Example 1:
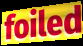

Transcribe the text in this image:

foiled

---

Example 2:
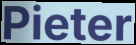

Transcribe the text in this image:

Pieter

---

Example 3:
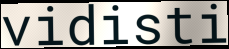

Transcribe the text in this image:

vidisti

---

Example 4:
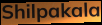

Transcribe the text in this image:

Shilpakala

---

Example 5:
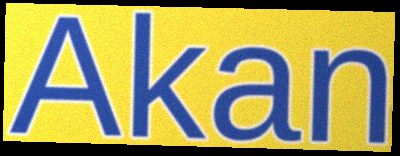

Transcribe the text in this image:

Akan